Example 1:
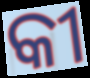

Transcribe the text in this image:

କୀ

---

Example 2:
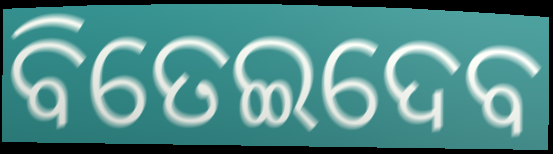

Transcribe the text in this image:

ବିତେଇଦେବ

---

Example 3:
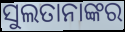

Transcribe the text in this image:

ସୁଲତାନାଙ୍କର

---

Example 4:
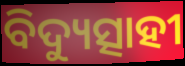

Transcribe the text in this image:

ବିଦ୍ୟୁତ୍ସାହୀ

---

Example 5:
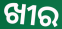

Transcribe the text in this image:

ଖୀର